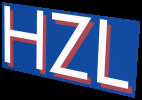
HZL